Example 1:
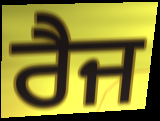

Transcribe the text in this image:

ਰੈਜ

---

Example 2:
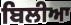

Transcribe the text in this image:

ਬਿਲੀਆ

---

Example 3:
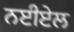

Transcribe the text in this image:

ਨਈਏਲ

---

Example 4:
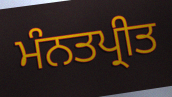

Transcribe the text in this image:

ਮੰਨਤਪ੍ਰੀਤ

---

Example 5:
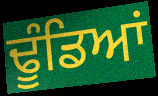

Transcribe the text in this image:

ਢੂੰਡਿਆਂ